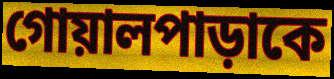
গোয়ালপাড়াকে